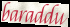
baraddu